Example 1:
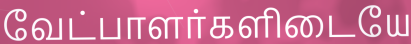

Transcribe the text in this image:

வேட்பாளர்களிடையே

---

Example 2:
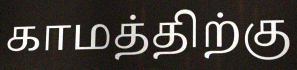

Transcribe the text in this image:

காமத்திற்கு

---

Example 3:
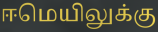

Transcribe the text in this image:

ஈமெயிலுக்கு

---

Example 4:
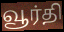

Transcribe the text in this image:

வூர்தி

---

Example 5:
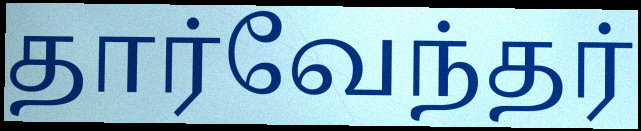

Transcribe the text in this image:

தார்வேந்தர்